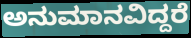
ಅನುಮಾನವಿದ್ದರೆ